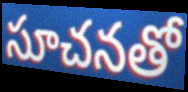
సూచనతో